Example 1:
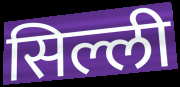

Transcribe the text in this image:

सिल्ली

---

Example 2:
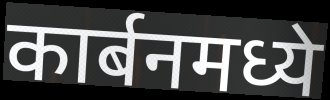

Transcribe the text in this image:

कार्बनमध्ये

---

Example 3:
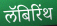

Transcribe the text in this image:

लॅबिरिंथ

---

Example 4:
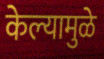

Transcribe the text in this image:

केल्यामुळे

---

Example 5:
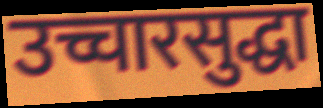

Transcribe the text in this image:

उच्चारसुद्धा